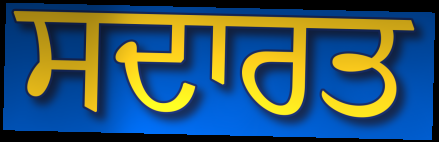
ਸਦਾਰਤ